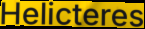
Helicteres